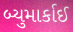
બ્યુમાર્કાઈ